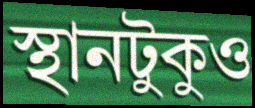
স্থানটুকুও